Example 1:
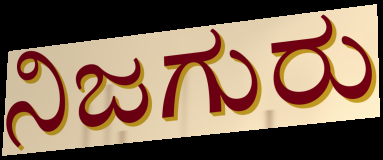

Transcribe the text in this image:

ನಿಜಗುರು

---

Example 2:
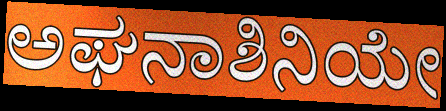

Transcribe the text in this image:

ಅಘನಾಶಿನಿಯೇ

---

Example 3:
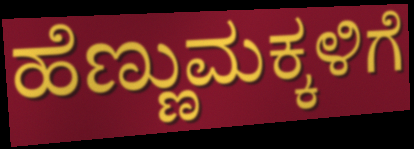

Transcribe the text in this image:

ಹೆಣ್ಣುಮಕ್ಕಳಿಗೆ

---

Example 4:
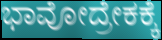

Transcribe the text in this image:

ಭಾವೋದ್ರೇಕಕ್ಕೆ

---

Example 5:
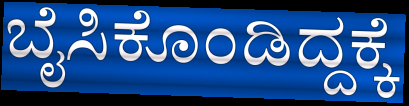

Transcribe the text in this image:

ಬೈಸಿಕೊಂಡಿದ್ದಕ್ಕೆ